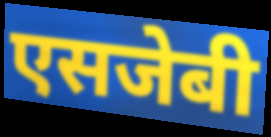
एसजेबी